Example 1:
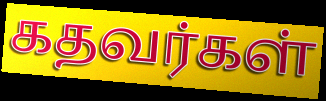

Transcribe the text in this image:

கதவர்கள்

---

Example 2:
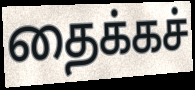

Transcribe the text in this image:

தைக்கச்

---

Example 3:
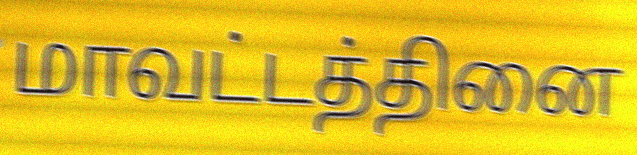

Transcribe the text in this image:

மாவட்டத்தினை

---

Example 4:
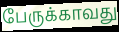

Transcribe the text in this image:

பேருக்காவது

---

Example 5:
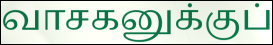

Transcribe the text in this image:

வாசகனுக்குப்